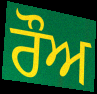
ਰੌਅ